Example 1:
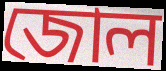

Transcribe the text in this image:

জোল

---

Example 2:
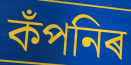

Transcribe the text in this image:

কঁপনিৰ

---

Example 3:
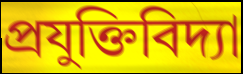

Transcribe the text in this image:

প্ৰযুক্তিবিদ্যা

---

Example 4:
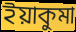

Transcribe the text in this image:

ইয়াকুমা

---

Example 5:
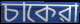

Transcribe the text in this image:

চাকেৱা